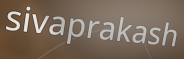
sivaprakash